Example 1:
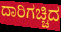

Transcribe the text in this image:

ದಾರಿಗಚ್ಚಿದ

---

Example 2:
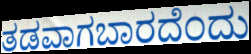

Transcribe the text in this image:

ತಡವಾಗಬಾರದೆಂದು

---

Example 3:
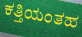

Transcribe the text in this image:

ಕತ್ತಿಯಂತಹ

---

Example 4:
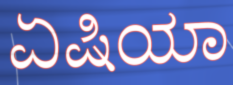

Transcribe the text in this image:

ಏಷಿಯಾ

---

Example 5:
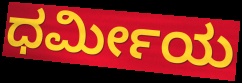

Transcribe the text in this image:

ಧರ್ಮೀಯ